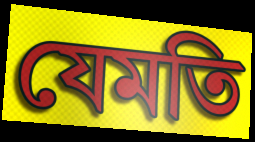
যেমতি